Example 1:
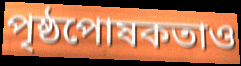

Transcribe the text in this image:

পৃষ্ঠপোষকতাও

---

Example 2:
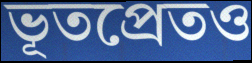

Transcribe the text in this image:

ভূতপ্রেতও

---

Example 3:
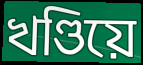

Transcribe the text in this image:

খণ্ডিয়ে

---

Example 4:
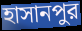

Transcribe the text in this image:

হাসানপুর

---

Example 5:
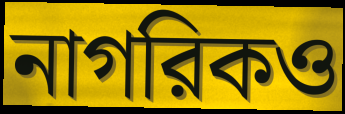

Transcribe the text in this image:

নাগরিকও